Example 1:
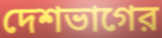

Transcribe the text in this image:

দেশভাগের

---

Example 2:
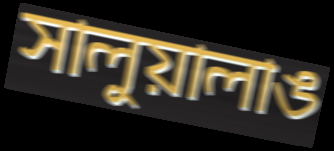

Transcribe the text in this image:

সালুয়ালাঙ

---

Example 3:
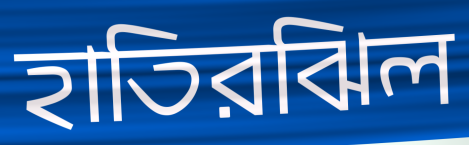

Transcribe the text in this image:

হাতিরঝিল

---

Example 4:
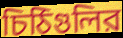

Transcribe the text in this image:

চিঠিগুলির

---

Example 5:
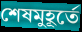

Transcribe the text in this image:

শেষমুহূর্তে